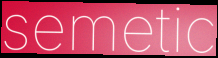
semetic